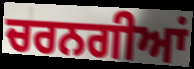
ਚਰਨਗੀਆਂ